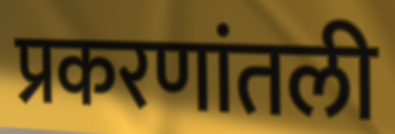
प्रकरणांतली